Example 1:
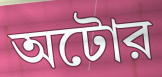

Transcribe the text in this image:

অটোর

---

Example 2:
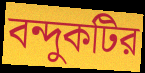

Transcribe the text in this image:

বন্দুকটির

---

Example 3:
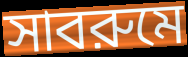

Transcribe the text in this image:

সাবরুমে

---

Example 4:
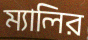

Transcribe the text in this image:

ম্যালির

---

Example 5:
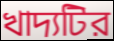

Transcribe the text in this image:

খাদ্যটির